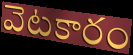
వెటకారం